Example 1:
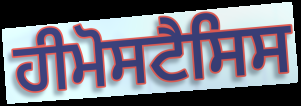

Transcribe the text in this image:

ਹੀਮੋਸਟੈਸਿਸ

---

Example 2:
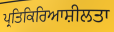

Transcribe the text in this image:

ਪ੍ਰਤਿਕਿਰਿਆਸ਼ੀਲਤਾ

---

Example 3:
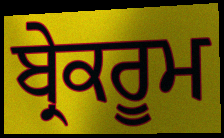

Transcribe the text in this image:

ਬ੍ਰੇਕਰੂਮ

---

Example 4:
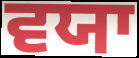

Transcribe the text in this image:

ਵਯਾ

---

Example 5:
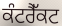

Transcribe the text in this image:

ਕੰਟਰੈੱਕਟ